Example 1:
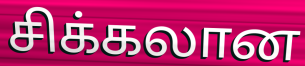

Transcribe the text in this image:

சிக்கலான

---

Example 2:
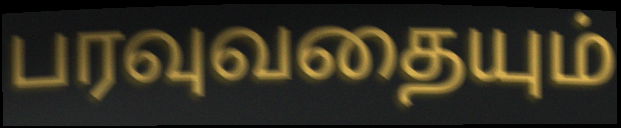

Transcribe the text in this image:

பரவுவதையும்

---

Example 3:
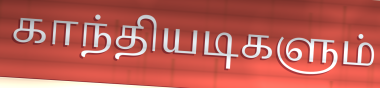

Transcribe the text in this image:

காந்தியடிகளும்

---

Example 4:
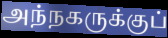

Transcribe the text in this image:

அந்நகருக்குப்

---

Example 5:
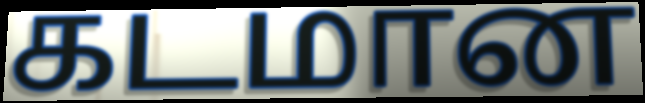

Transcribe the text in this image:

கடமான